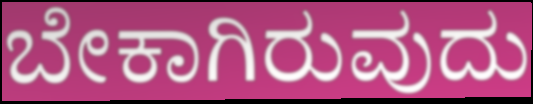
ಬೇಕಾಗಿರುವುದು